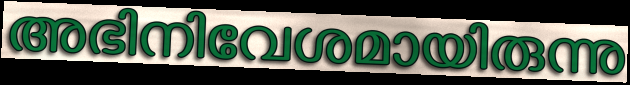
അഭിനിവേശമായിരുന്നു